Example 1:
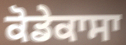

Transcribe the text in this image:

ਕੋਡੇਕਾਸਾ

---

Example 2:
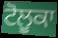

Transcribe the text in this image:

ਟੋਲੂਕਾ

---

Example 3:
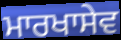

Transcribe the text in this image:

ਮਾਰਖਾਸੇਵ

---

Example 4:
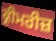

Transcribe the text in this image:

ਕ੍ਰੀਮਰੀਜ਼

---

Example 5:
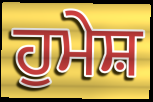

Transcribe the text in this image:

ਹੁਮੇਸ਼